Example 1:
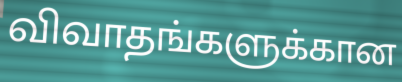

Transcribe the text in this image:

விவாதங்களுக்கான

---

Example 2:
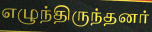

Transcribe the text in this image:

எழுந்திருந்தனர்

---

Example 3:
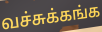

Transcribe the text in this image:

வச்சுக்கங்க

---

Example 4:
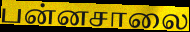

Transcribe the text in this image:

பன்னசாலை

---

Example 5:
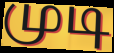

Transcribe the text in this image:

முடி